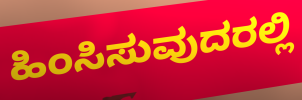
ಹಿಂಸಿಸುವುದರಲ್ಲಿ